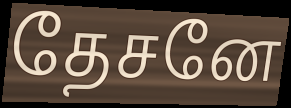
தேசனே